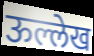
ऊल्लेख